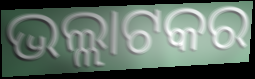
ଭଲ୍ଲାଟକର